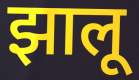
झालू